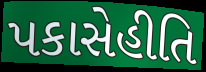
પકાસેહીતિ